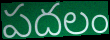
పదలం